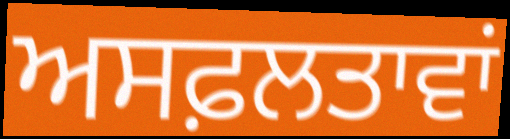
ਅਸਫ਼ਲਤਾਵਾਂ